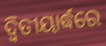
ଦ୍ଵିତୀୟାର୍ଦ୍ଧରେ